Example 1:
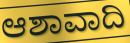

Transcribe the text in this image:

ಆಶಾವಾದಿ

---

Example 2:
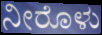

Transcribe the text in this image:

ನೀರೊಳು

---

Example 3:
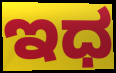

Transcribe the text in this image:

ಇಧ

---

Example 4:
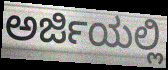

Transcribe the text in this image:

ಅರ್ಜಿಯಲ್ಲಿ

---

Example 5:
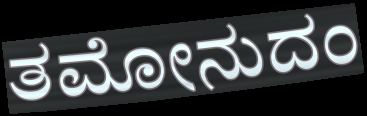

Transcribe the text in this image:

ತಮೋನುದಂ